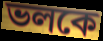
ভলকে